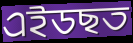
এইডছত